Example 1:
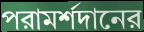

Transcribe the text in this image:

পরামর্শদানের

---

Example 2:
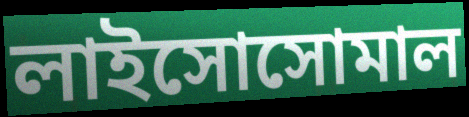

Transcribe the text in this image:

লাইসোসোমাল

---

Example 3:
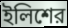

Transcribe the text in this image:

ইলিশের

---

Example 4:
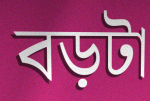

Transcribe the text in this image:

বড়টা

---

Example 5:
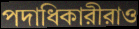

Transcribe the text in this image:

পদাধিকারীরাও